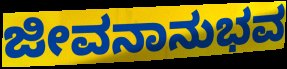
ಜೀವನಾನುಭವ